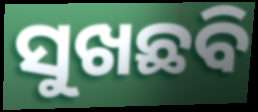
ସୁଖଛବି